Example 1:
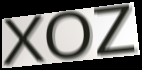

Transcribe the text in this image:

XOZ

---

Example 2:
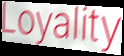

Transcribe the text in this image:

Loyality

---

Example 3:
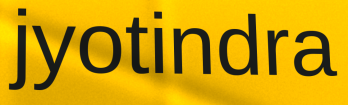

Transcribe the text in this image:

jyotindra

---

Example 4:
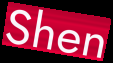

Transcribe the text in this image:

Shen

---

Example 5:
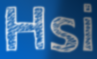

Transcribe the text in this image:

Hsi